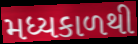
મધ્યકાળથી